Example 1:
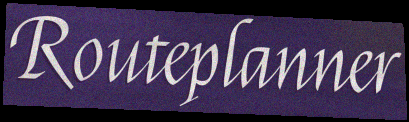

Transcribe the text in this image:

Routeplanner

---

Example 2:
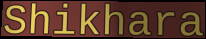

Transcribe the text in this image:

Shikhara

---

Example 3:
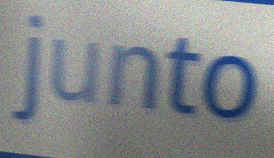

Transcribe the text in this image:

junto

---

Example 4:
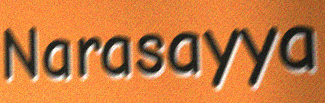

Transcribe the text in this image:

Narasayya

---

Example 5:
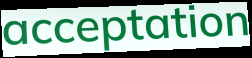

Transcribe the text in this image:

acceptation